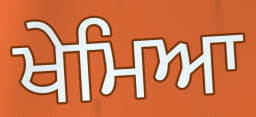
ਖੇਮਿਆ